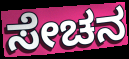
ಸೇಚನ